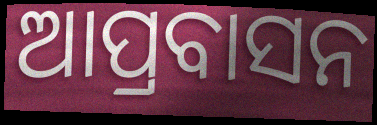
ଆପ୍ରବାସନ